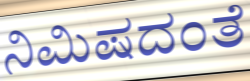
ನಿಮಿಷದಂತೆ